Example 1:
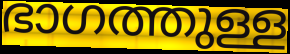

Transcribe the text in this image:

ഭാഗത്തുള്ള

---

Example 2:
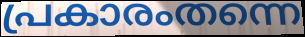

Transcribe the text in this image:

പ്രകാരംതന്നെ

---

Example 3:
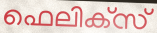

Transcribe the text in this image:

ഫെലിക്‌സ്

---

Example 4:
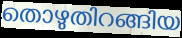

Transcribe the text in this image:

തൊഴുതിറങ്ങിയ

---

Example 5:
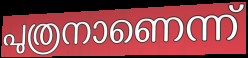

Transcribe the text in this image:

പുത്രനാണെന്ന്